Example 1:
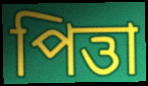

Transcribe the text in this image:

পিত্তা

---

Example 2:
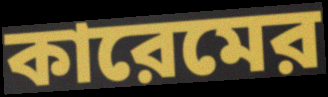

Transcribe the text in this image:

কারেমের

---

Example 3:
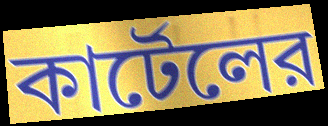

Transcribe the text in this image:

কার্টেলের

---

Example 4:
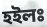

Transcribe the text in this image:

হইলঃ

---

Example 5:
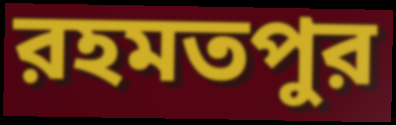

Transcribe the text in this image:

রহমতপুর